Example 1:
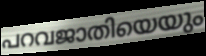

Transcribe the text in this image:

പറവജാതിയെയും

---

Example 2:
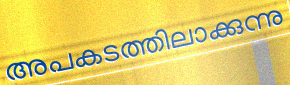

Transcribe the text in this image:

അപകടത്തിലാക്കുന്നു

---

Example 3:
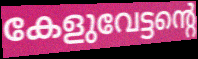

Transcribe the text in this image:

കേളുവേട്ടന്റെ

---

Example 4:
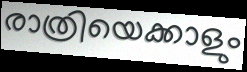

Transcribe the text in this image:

രാത്രിയെക്കാളും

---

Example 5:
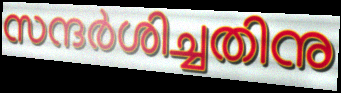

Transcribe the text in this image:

സന്ദർശിച്ചതിനു